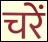
चरें